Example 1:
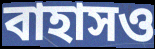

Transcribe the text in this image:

বাহাসও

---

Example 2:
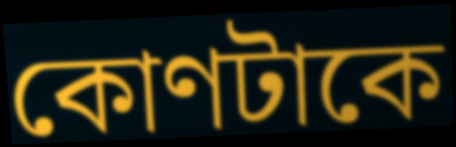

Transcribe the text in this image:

কোণটাকে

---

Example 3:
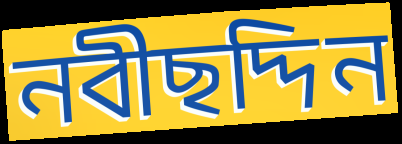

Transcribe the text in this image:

নবীছদ্দিন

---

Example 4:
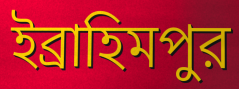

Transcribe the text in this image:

ইব্রাহিমপুর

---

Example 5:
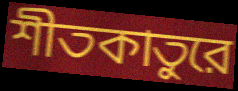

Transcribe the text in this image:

শীতকাতুরে